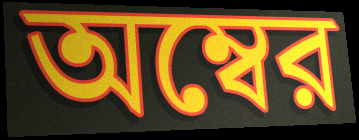
অম্বের